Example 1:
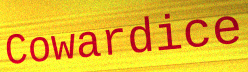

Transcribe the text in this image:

Cowardice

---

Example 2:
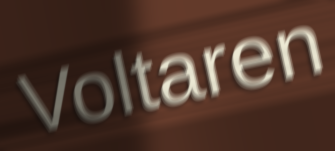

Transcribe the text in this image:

Voltaren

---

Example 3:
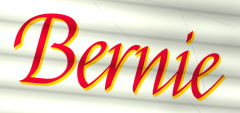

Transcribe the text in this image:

Bernie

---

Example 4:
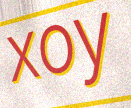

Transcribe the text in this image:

xoy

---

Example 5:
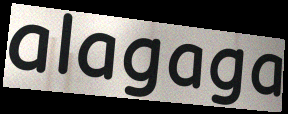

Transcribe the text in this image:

alagaga